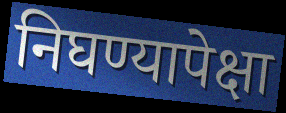
निघण्यापेक्षा